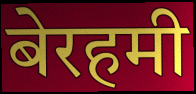
बेरहमी